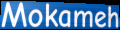
Mokameh